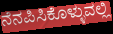
ನೆನಪಿಸಿಕೊಳ್ಳುವಲ್ಲಿ